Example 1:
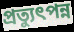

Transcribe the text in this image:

প্রত্যুৎপন্ন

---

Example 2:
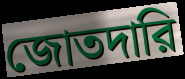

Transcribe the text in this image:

জোতদারি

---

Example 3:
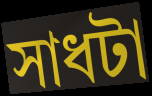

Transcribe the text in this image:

সাধটা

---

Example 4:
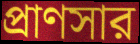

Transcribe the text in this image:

প্রাণসার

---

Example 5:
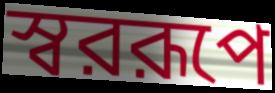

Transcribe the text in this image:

স্বররূপে